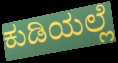
ಕುಡಿಯಲ್ಲೆ